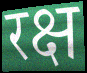
रक्ष